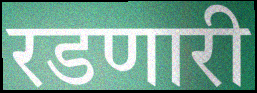
रडणारी